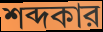
শব্দকার